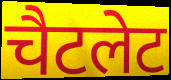
चैटलेट